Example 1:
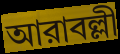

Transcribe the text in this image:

আরাবল্লী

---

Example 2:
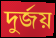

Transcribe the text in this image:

দুর্জয়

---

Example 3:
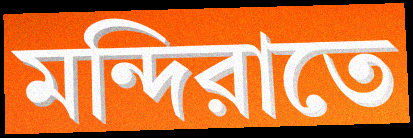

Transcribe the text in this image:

মন্দিরাতে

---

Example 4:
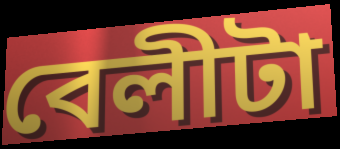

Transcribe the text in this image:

বেলীটা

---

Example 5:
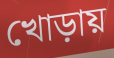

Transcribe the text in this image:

খোড়ায়